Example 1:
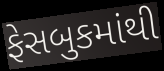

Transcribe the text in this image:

ફેસબુકમાંથી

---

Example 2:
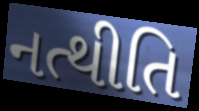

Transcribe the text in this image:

નત્થીતિ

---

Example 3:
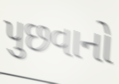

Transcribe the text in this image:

પુછવાનો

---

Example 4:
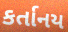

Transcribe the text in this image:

કર્તાનય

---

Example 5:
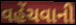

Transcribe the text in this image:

વહેંચવાની